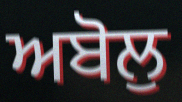
ਅਬੋਲੁ